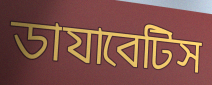
ডাযাবেটিস